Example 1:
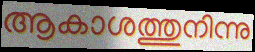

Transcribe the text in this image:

ആകാശത്തുനിന്നു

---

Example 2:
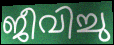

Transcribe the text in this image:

ജീവിച്ചു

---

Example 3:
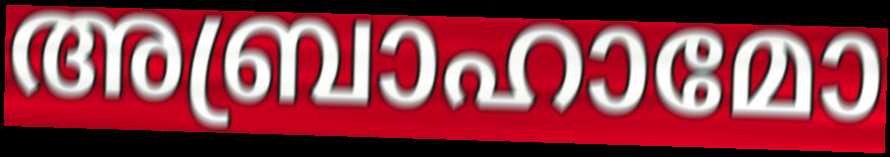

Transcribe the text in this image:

അബ്രാഹാമോ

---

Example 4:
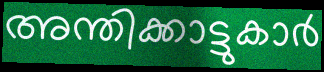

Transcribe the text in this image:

അന്തിക്കാട്ടുകാർ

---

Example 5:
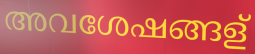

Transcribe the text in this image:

അവശേഷങ്ങള്